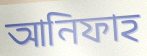
আনিফাহ